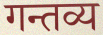
गन्तव्य